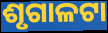
ଶୃଗାଳଟା